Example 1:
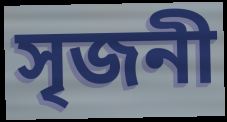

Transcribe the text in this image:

সৃজনী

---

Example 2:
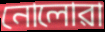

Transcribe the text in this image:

নোলোৱা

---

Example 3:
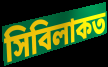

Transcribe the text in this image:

সিবিলাকত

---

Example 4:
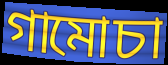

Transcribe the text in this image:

গামোচা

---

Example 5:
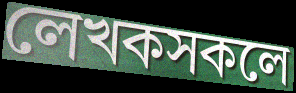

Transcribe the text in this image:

লেখকসকলে